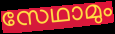
സേഥാമും